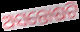
ଅସନ୍ତୋଷଟି